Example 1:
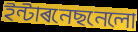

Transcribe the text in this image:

ইন্টাৰনেছনেলো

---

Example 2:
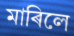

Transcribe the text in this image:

মাৰিলে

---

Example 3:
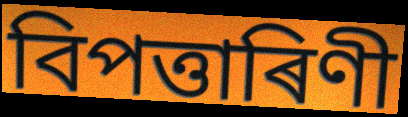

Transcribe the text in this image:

বিপত্তাৰিণী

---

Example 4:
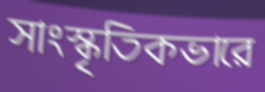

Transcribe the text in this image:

সাংস্কৃতিকভাৱে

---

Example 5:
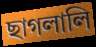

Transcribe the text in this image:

ছাগলালি